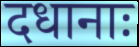
दधानाः